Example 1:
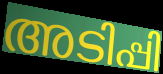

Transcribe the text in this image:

അടിപ്പി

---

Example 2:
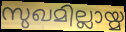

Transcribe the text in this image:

സുഖമില്ലായ്മ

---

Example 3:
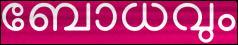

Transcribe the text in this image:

ബോധവും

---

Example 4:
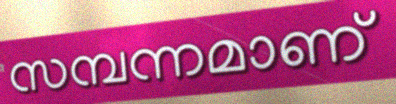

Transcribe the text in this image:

സമ്പന്നമാണ്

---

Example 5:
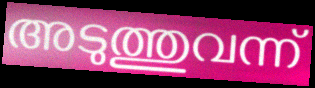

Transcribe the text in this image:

അടുത്തുവന്ന്